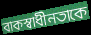
বাকস্বাধীনতাকে